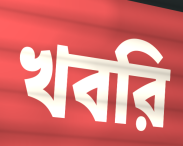
খবরি